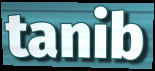
tanib